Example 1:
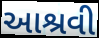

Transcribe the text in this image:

આશ્રવી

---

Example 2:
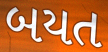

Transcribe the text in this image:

બયત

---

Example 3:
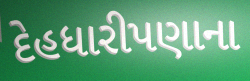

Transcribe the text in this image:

દેહધારીપણાના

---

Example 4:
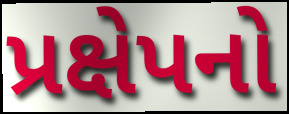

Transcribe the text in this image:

પ્રક્ષેપનો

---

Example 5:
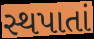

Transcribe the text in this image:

સ્થપાતાં